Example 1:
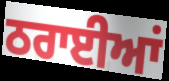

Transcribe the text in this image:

ਠਰਾਈਆਂ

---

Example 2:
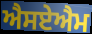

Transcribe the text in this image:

ਐਸਏਐਮ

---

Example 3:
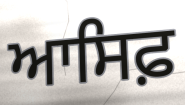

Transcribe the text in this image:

ਆਸਿਫ਼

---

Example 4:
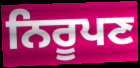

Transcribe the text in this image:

ਨਿਰੂਪਣ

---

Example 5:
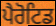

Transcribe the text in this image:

ਪੈਰੋਟਿਡ